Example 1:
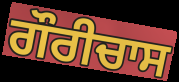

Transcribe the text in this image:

ਗੌਰੀਚਾਸ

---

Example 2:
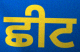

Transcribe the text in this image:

ਛੀਟ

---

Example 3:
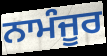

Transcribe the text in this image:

ਨਾਮੰਜੂਰ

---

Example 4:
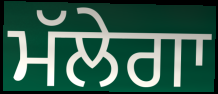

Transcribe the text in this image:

ਮੱਲੇਗਾ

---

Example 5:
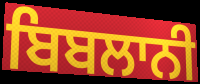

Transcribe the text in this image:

ਬਿਬਲਾਨੀ